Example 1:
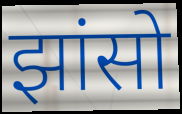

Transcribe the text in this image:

झांसो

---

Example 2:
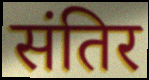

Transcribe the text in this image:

संतिर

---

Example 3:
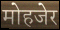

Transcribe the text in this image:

मोहजेर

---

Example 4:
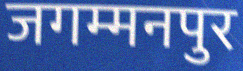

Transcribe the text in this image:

जगम्मनपुर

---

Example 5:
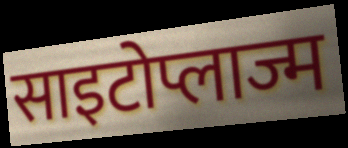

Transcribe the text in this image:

साइटोप्लाज्म